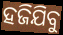
ହଜିଯିବୁ